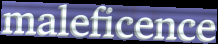
maleficence